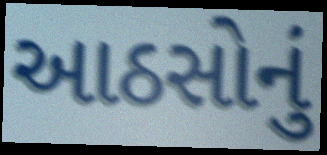
આઠસોનું